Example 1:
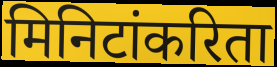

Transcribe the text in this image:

मिनिटांकरिता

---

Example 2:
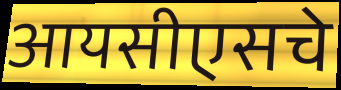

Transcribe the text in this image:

आयसीएसचे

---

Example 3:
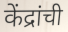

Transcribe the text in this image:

केंद्रांची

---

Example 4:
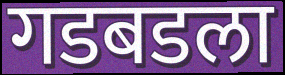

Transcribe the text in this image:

गडबडला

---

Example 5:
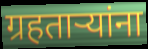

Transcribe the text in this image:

ग्रहताऱ्यांना